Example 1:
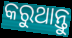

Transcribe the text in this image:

କରୁଥାନ୍ତୁ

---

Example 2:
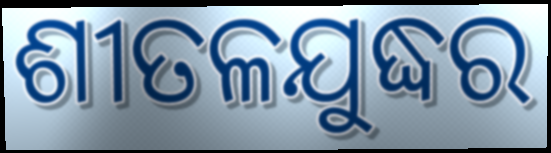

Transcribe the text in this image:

ଶୀତଳଯୁଦ୍ଧର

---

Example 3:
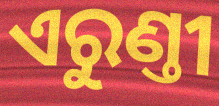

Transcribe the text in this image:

ଏରୁଣ୍ତୀ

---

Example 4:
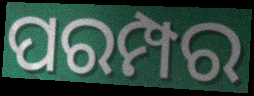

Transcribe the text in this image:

ପରମ୍ପର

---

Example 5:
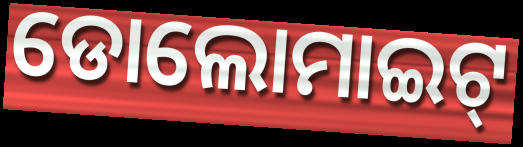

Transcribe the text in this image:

ଡୋଲୋମାଇଟ୍